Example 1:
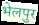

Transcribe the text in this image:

भेलपुर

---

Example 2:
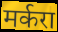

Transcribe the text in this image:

मर्करा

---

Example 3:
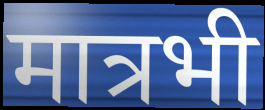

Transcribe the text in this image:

मात्रभी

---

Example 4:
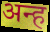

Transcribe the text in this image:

अन्ह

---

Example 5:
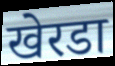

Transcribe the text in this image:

खेरडा